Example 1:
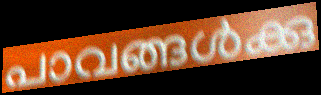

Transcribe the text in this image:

പാവങ്ങൾക്കു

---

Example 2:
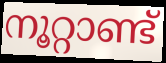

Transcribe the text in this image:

നൂറ്റാണ്ട്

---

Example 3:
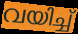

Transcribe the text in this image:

വയിച്ച്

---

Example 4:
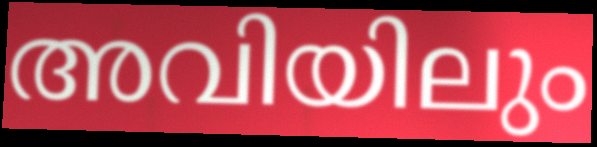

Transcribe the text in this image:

അവിയിലും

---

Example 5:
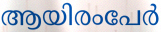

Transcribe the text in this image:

ആയിരംപേർ